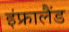
इंफ्रालैंड